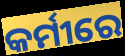
କର୍ମୀରେ